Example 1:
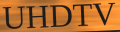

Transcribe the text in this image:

UHDTV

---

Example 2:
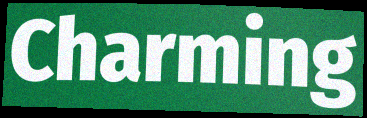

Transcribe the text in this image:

Charming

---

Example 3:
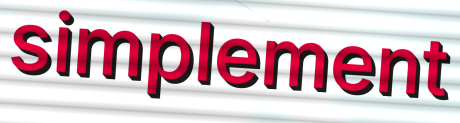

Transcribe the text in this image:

simplement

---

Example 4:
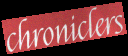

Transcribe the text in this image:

chroniclers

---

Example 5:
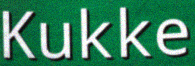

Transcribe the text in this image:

Kukke